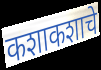
कशाकशाचे